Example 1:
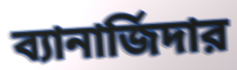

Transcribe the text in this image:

ব্যানার্জিদার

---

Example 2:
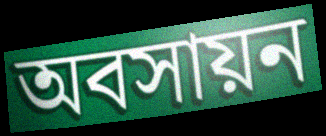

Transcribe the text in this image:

অবসায়ন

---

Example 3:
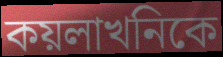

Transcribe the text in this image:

কয়লাখনিকে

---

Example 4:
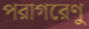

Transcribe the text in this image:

পরাগরেণু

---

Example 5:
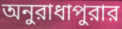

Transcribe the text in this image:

অনুরাধাপুরার